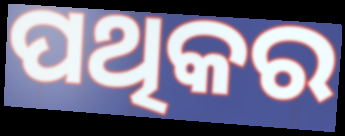
ପଥିକର